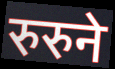
रुरुने